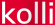
kolli